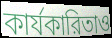
কার্যকারিতাও